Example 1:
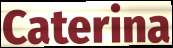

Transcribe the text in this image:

Caterina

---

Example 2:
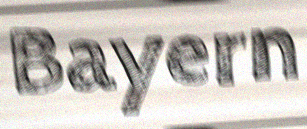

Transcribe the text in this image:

Bayern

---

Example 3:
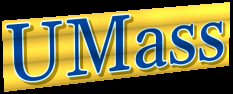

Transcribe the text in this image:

UMass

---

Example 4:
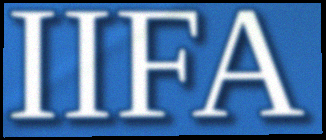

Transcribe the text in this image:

IIFA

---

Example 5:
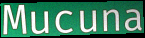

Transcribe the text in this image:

Mucuna